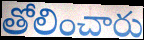
తోలించారు